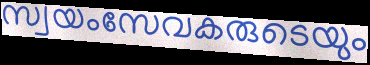
സ്വയംസേവകരുടെയും